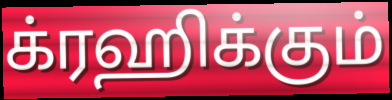
க்ரஹிக்கும்